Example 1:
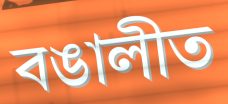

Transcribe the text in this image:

বঙালীত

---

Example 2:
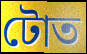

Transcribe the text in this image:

টোত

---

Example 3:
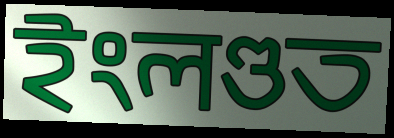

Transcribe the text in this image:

ইংলণ্ডত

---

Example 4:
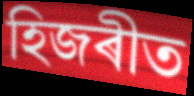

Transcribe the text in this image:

হিজৰীত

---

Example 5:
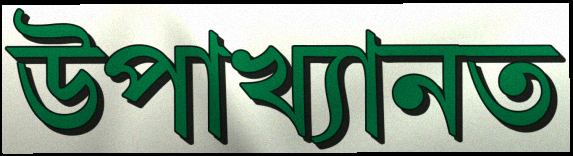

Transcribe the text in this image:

উপাখ্যানত